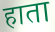
हाता